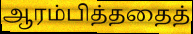
ஆரம்பித்ததைத்